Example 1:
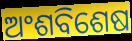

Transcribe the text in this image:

ଅଂଶବିଶେଷ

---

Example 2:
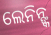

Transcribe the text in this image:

ଲେନିନ୍ଙ୍କ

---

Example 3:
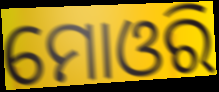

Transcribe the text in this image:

ମୋଓରି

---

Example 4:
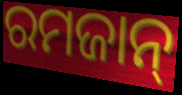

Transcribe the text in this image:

ରମଜାନ୍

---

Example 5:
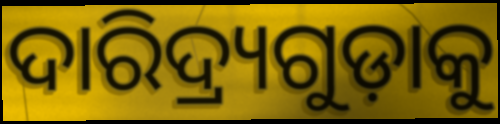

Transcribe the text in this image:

ଦାରିଦ୍ର୍ୟଗୁଡ଼ାକୁ